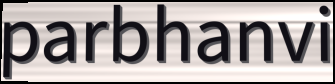
parbhanvi